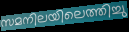
സമനിലയിലെത്തിച്ചു